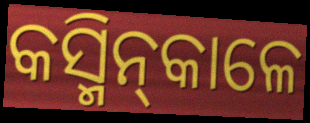
କସ୍ମିନ୍‍କାଳେ